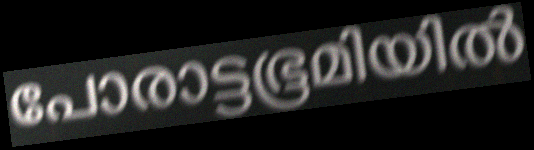
പോരാട്ടഭൂമിയിൽ